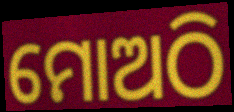
ମୋଅଠି